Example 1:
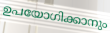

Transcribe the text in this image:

ഉപയോഗിക്കാനും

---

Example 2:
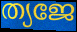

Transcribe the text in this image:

ത്യജേ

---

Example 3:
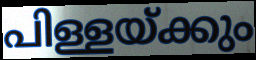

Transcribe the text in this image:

പിള്ളയ്ക്കും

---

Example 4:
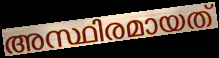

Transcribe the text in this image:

അസ്ഥിരമായത്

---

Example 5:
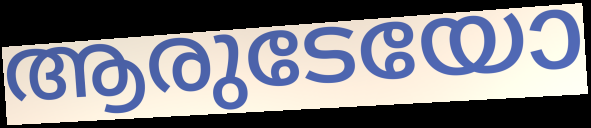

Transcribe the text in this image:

ആരുടേയോ